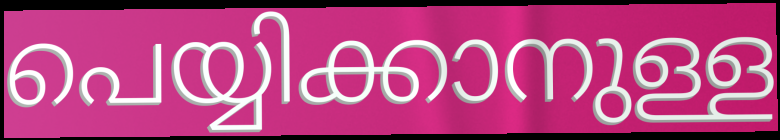
പെയ്യിക്കാനുള്ള